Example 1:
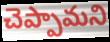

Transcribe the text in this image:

చెప్పామని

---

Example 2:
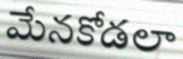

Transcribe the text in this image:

మేనకోడలా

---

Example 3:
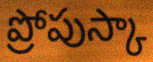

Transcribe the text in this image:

ప్రోపుస్కా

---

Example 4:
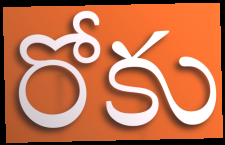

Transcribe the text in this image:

రోకు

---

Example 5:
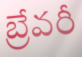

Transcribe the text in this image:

బ్రేవరీ